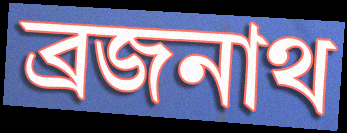
ব্রজনাথ